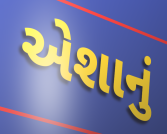
એશાનું